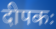
दीपकः